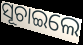
ସୂଚାଇଲେ